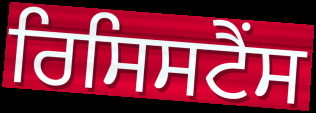
ਰਿਸਿਸਟੈਂਸ